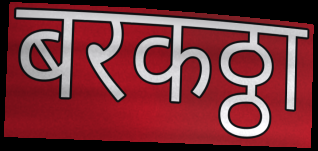
बरकठ्ठा